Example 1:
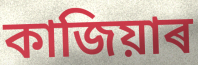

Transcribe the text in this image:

কাজিয়াৰ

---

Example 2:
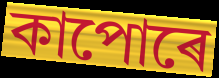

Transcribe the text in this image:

কাপোৰে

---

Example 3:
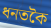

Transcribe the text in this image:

ধনতকৈ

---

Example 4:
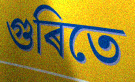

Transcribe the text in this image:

গুৰিতে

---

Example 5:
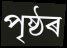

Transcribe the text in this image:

পৃষ্ঠৰ